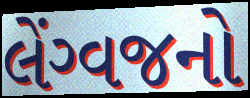
લેંગ્વજનો